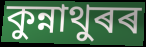
কুন্নাথুৰৰ